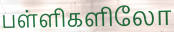
பள்ளிகளிலோ